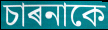
চাৰনাকে